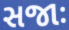
સજાઃ